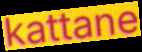
kattane